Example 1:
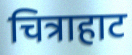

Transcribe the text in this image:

चित्राहाट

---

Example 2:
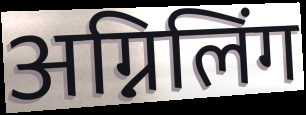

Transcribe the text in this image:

अग्निलिंग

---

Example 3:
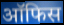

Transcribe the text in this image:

ऑफिस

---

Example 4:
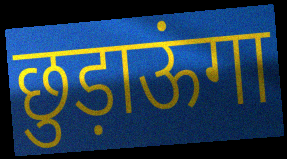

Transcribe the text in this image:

छुड़ाऊंगा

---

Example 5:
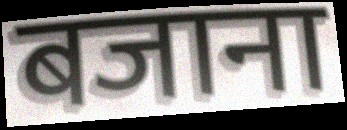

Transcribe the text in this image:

बजाना